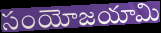
సంయోజయామి